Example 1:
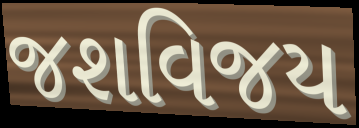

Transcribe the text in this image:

જશવિજય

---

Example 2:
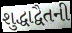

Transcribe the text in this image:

શુદ્ધાદ્વૈતની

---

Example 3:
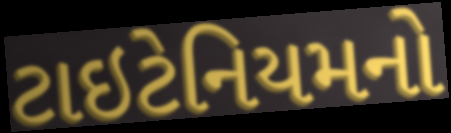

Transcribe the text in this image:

ટાઇટેનિયમનો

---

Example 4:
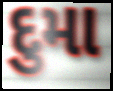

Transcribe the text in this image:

દુમા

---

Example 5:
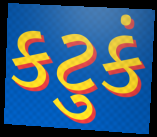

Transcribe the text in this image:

કટુકં